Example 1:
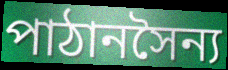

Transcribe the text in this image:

পাঠানসৈন্য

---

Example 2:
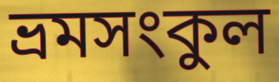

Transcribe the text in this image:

ভ্রমসংকুল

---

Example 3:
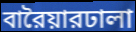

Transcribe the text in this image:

বারৈয়ারঢালা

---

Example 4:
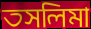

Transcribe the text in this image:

তসলিমা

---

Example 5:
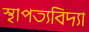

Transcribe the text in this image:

স্থাপত্যবিদ্যা